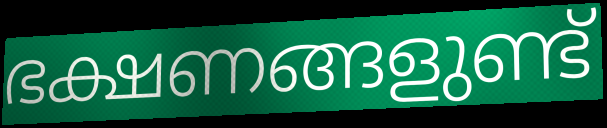
ഭക്ഷണങ്ങളുണ്ട്